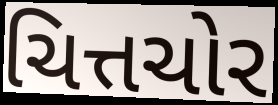
ચિત્તચોર